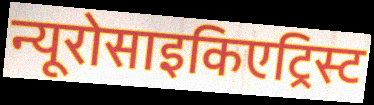
न्यूरोसाइकिएट्रिस्ट